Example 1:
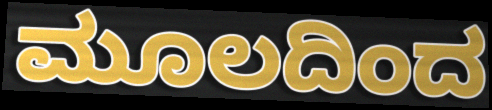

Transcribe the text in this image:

ಮೂಲದಿಂದ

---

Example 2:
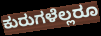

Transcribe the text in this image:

ಕುರುಗಳೆಲ್ಲರೂ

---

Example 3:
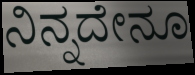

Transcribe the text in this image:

ನಿನ್ನದೇನೂ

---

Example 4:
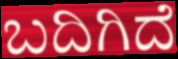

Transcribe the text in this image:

ಬದಿಗಿದೆ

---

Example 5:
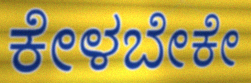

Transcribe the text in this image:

ಕೇಳಬೇಕೇ